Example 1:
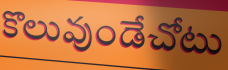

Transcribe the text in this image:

కొలువుండేచోటు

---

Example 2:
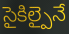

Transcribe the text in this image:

సైకిల్పైనే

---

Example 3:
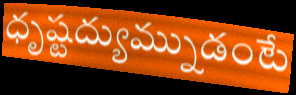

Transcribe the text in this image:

ధృష్టద్యుమ్నుడంటే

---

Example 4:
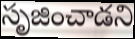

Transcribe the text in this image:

సృజించాడని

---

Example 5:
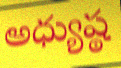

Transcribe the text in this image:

అధ్యుష్ఠ